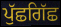
ਪੁੱਛਗਿੱਛ